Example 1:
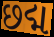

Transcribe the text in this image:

છદ્મ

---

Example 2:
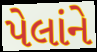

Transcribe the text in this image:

પેલાંને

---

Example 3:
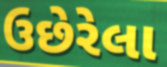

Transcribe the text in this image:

ઉછેરેલા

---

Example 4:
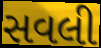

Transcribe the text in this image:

સવલી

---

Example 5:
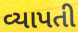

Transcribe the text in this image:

વ્યાપતી